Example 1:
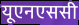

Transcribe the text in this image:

यूएनएससी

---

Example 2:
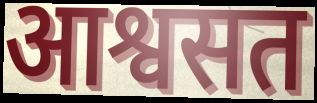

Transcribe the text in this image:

आश्वसत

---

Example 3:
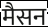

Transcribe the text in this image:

मैसन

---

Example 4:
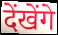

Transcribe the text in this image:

देंखेंगे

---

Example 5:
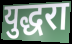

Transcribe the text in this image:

युद्धरा